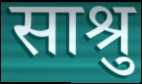
साश्रु